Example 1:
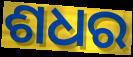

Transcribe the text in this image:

ଶଧର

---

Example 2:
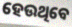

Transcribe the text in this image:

ହେଉଥିବେ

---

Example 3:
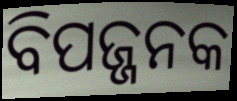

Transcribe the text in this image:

ବିପଜ୍ଜନକ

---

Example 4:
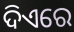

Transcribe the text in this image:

ଦିଏରେ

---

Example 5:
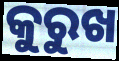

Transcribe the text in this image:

କୁରୁଖ